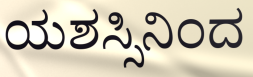
ಯಶಸ್ಸಿನಿಂದ